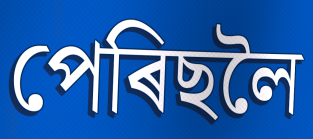
পেৰিছলৈ